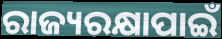
ରାଜ୍ୟରକ୍ଷାପାଇଁ